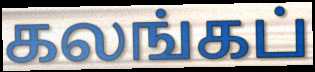
கலங்கப்